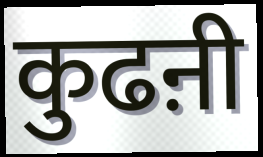
कुढऩी